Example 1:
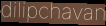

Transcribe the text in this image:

dilipchavan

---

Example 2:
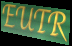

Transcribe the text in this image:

EUTR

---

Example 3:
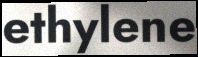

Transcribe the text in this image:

ethylene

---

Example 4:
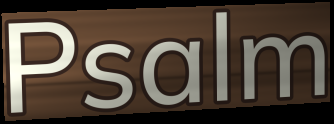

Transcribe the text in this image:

Psalm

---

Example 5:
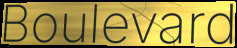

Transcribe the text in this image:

Boulevard